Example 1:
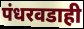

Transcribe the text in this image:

पंधरवडाही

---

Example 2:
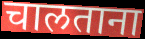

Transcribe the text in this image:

चालताना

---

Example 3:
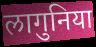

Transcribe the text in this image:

लागुनिया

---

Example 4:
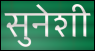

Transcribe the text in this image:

सुनेशी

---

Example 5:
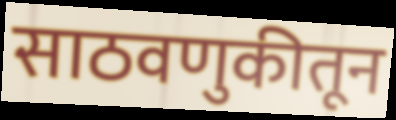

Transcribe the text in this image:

साठवणुकीतून